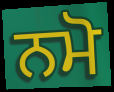
ਨਮੋ